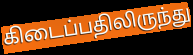
கிடைப்பதிலிருந்து